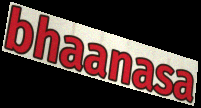
bhaanasa